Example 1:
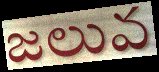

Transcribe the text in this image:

జలువ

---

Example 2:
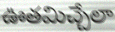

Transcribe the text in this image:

ఊతమిచ్చేలా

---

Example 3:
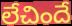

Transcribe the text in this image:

లేచిందే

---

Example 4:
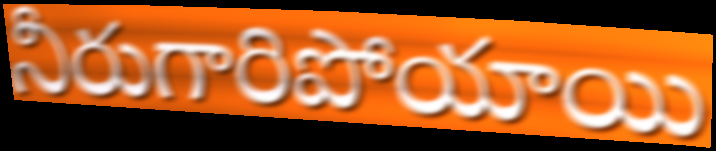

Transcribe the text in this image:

నీరుగారిపోయాయి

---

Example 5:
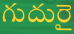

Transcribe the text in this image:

గుదురై